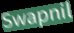
Swapnil